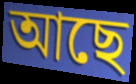
আছে